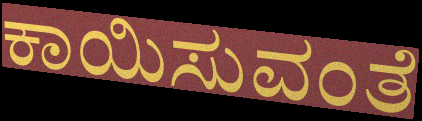
ಕಾಯಿಸುವಂತೆ